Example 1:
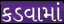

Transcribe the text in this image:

કડવામાં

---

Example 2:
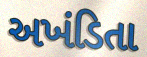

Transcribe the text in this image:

અખંડિતા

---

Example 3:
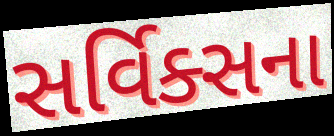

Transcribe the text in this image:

સર્વિક્સના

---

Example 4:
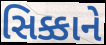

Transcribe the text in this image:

સિક્કાને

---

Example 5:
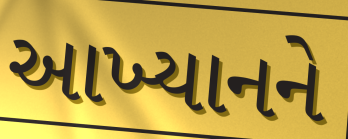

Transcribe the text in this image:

આખ્યાનને